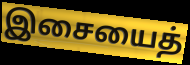
இசையைத்